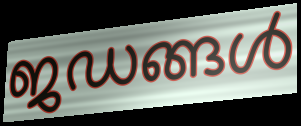
ജഡങ്ങൾ